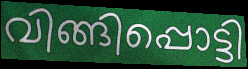
വിങ്ങിപ്പൊട്ടി